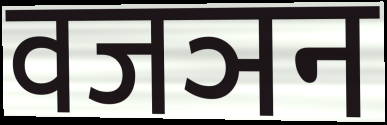
वजञन